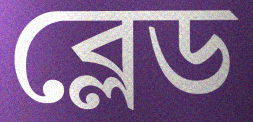
ব্লেড